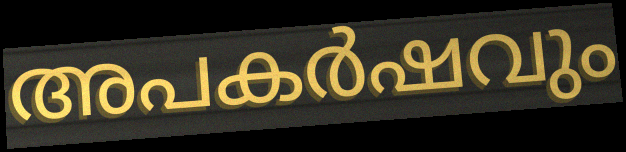
അപകർഷവും